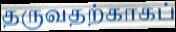
தருவதற்காகப்